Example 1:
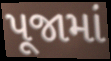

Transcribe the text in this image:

પૂજામાં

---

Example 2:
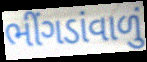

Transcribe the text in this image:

ભીંગડાંવાળું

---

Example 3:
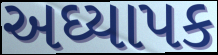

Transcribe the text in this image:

અઘ્યાપક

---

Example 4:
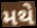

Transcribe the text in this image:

મથે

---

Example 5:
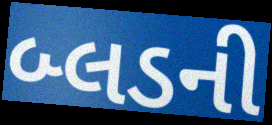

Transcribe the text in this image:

બ્લડની